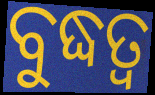
ବୁଦ୍ଧତ୍ୱ